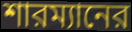
শারম্যানের